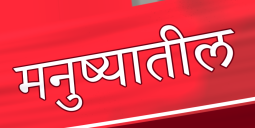
मनुष्यातील